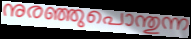
നുരഞ്ഞുപൊന്തുന്ന